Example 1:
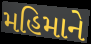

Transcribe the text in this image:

મહિમાને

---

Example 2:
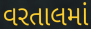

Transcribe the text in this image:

વરતાલમાં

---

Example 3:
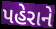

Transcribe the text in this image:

પહેરાને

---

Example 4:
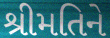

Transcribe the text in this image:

શ્રીમતિને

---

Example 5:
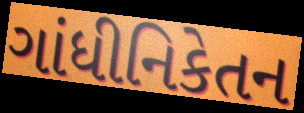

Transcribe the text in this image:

ગાંધીનિકેતન